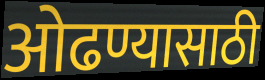
ओढण्यासाठी